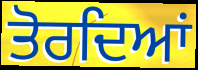
ਤੋਰਦਿਆਂ